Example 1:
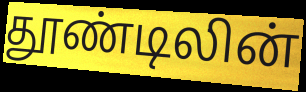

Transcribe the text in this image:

தூண்டிலின்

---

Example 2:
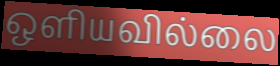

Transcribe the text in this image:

ஒளியவில்லை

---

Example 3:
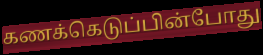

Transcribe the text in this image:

கணக்கெடுப்பின்போது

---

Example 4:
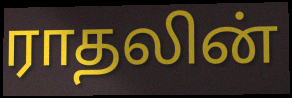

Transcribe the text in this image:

ராதலின்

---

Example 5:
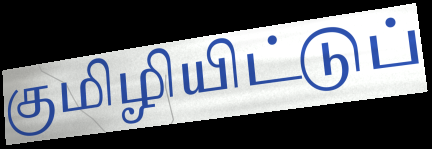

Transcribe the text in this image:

குமிழியிட்டுப்